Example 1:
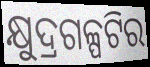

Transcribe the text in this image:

କ୍ଷୁଦ୍ରଗଳ୍ପଟିର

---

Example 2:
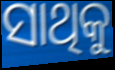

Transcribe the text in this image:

ସାଥିକୁ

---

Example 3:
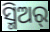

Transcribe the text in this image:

ସ୍ମିଅର୍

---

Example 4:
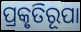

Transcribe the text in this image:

ପ୍ରକୃତିରୂପା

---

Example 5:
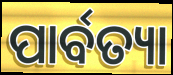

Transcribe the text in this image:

ପାର୍ବତ୍ୟା